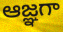
ఆజ్ఞగా